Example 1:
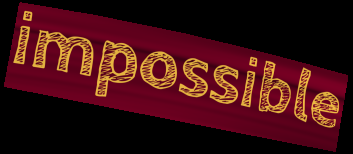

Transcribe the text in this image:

impossible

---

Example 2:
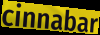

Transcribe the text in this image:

cinnabar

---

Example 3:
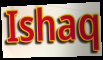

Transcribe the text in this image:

Ishaq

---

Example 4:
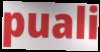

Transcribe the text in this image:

puali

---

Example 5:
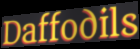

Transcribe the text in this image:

Daffodils